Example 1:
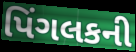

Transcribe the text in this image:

પિંગલકની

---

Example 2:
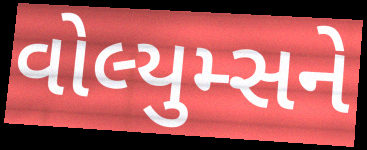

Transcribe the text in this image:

વોલ્યુમ્સને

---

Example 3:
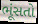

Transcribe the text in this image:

ભૂંસતો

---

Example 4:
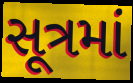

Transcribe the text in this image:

સૂત્રમાં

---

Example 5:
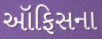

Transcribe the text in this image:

ઑફિસના